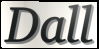
Dall